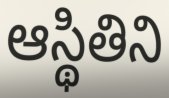
ఆస్థితిని